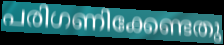
പരിഗണിക്കേണ്ടതു